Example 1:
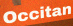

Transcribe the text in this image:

Occitan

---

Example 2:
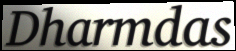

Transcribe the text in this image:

Dharmdas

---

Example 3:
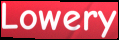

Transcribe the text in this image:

Lowery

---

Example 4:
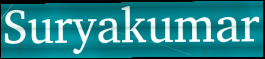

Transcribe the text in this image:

Suryakumar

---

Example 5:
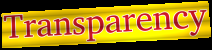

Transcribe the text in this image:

Transparency